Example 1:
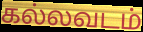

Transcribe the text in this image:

கல்லவடம்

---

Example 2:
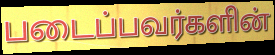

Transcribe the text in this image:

படைப்பவர்களின்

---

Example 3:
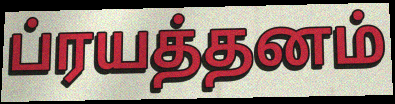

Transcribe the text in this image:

ப்ரயத்தனம்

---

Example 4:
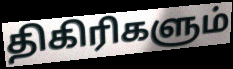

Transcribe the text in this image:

திகிரிகளும்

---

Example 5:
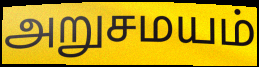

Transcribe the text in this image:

அறுசமயம்